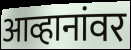
आव्हानांवर